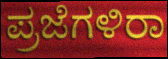
ಪ್ರಜೆಗಳಿರಾ